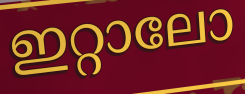
ഇറ്റാലോ